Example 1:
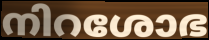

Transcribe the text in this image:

നിറശോഭ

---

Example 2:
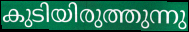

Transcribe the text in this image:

കുടിയിരുത്തുന്നു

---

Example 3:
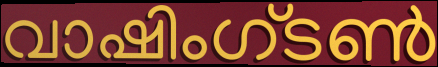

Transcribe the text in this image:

വാഷിംഗ്ടൺ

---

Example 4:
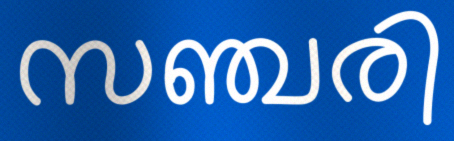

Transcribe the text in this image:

സഞ്ചരി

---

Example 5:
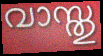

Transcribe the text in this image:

വാസ്തു